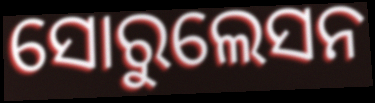
ସୋରୁଲେସନ